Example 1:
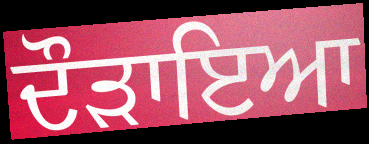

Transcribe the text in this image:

ਦੌੜਾਇਆ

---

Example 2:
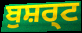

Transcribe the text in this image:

ਬੁਸ਼ਰ੍ਟ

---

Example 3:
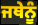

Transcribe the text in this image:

ਜਥੇਨੂੰ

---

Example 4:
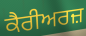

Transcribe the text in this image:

ਕੈਰੀਅਰਜ਼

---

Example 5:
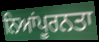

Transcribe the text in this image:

ਨਿਆਂਪੂਰਨਤਾ